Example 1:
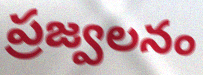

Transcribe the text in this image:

ప్రజ్వలనం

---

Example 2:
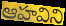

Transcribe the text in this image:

ఆహవిని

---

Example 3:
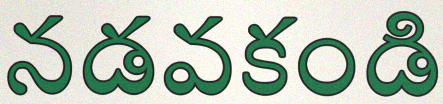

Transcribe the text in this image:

నడవకండి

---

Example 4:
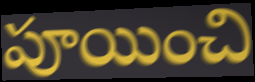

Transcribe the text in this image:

పూయించి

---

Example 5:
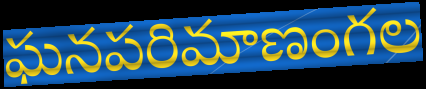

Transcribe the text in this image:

ఘనపరిమాణంగల